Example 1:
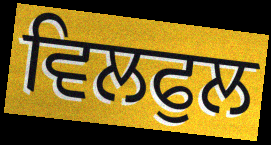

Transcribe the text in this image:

ਵਿਲਫੁਲ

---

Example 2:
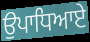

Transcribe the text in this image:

ਉਪਾਧਿਆਏ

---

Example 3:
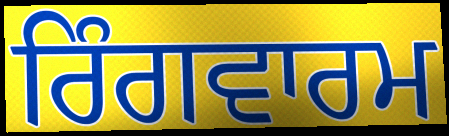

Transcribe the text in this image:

ਰਿੰਗਵਾਰਮ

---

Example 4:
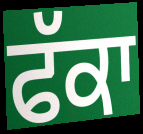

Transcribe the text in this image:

ਫੱਕਾ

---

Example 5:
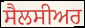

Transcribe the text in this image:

ਸੈਲਸੀਅਰ